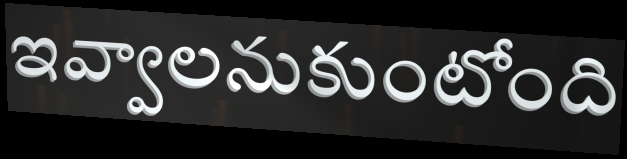
ఇవ్వాలనుకుంటోంది